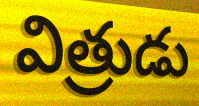
విత్రుడు